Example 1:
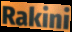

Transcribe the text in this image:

Rakini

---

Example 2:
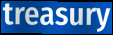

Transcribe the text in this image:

treasury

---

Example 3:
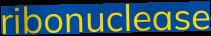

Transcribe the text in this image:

ribonuclease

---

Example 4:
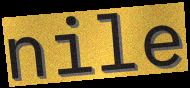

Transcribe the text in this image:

nile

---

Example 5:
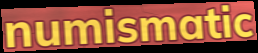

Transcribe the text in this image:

numismatic